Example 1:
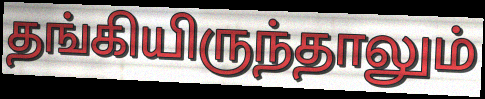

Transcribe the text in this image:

தங்கியிருந்தாலும்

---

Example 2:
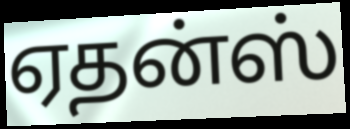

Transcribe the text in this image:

ஏதன்ஸ்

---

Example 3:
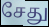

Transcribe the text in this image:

சேது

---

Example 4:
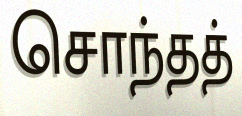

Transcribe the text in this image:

சொந்தத்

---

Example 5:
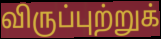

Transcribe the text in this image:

விருப்புற்றுக்